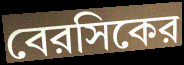
বেরসিকের